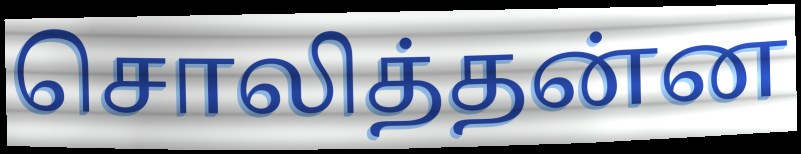
சொலித்தன்ன